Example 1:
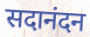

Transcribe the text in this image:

सदानंदन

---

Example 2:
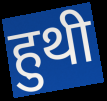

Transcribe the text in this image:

हुथी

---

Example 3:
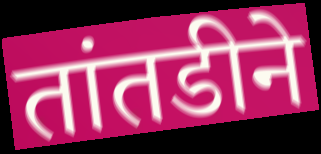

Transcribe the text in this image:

तांतडीने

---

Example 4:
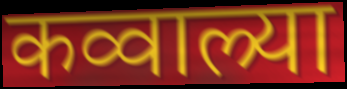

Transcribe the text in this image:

कव्वाल्या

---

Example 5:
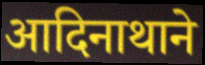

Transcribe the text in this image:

आदिनाथाने